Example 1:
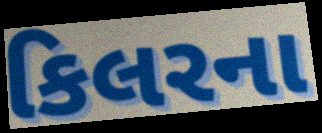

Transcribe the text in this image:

કિલરના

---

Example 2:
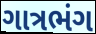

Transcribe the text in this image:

ગાત્રભંગ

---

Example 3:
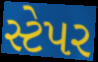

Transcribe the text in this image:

સ્ટેપર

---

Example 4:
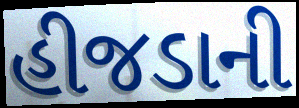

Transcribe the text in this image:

હીજડાની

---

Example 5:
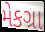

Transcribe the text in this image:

મેકગ્રા